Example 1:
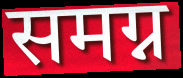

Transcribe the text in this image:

समग्न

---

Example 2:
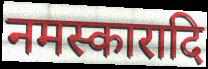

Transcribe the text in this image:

नमस्कारादि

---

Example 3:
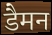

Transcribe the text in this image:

डैमन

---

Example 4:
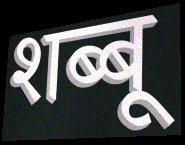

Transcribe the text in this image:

शब्बू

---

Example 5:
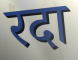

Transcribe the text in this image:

रदा